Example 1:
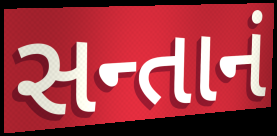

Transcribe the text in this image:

સન્તાનં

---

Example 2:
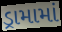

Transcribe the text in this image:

ડ્રામામાં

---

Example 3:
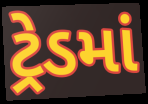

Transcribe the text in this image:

ટ્રેડમાં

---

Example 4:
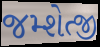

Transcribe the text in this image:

જમ્શેત્જી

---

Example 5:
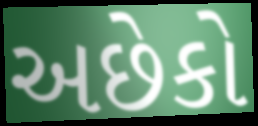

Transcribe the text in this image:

અછેકો